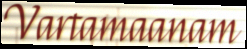
Vartamaanam